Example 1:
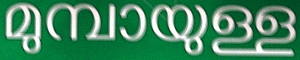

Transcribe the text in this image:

മുമ്പായുള്ള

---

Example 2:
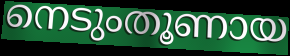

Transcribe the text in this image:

നെടുംതൂണായ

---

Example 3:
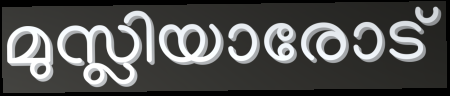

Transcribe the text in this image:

മുസ്ലിയാരോട്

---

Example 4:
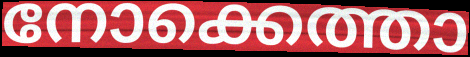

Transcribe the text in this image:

നോക്കെത്താ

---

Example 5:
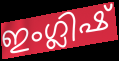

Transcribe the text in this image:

ഇംഗ്ലിഷ്